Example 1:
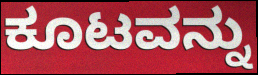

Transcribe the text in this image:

ಕೂಟವನ್ನು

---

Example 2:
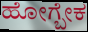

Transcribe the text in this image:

ಹೋಗ್ಬೇಕ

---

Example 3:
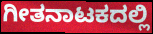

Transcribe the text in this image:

ಗೀತನಾಟಕದಲ್ಲಿ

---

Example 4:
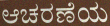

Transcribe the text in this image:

ಆಚರಣೆಯ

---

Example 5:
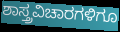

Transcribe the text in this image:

ಶಾಸ್ತ್ರವಿಚಾರಗಳಿಗೂ